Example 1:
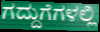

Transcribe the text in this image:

ಗದ್ದುಗೆಗಳಲ್ಲಿ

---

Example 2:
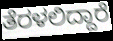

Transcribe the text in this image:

ತೆರಳಲಿದ್ದಾರೆ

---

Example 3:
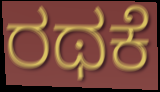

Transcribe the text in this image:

ರಥಕೆ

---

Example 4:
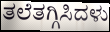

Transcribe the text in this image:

ತಲೆತಗ್ಗಿಸಿದಳು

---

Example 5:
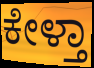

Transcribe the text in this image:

ಕೇಳ್ತಾ